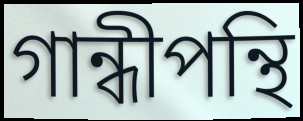
গান্ধীপন্থি